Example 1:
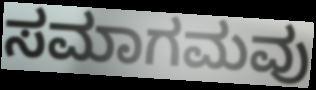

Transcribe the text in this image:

ಸಮಾಗಮವು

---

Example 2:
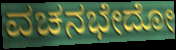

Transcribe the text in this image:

ವಚನಭೇದೋ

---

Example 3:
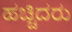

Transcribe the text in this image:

ಹಚ್ಚಿದರು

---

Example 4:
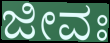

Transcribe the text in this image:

ಜೀವಃ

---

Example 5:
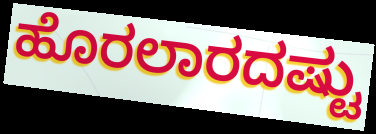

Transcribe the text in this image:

ಹೊರಲಾರದಷ್ಟು